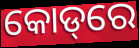
କୋଡ୍‌ରେ